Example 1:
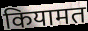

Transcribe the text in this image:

कियामत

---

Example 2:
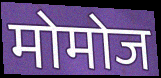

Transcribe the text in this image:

मोमोज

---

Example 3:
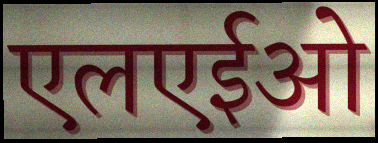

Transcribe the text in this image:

एलएईओ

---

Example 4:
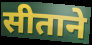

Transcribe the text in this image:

सीताने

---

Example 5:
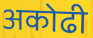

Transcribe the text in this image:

अकोढी